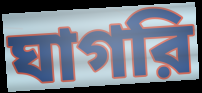
ঘাগরি